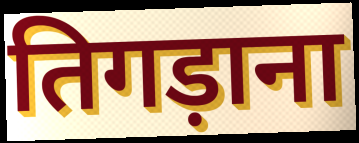
तिगड़ाना